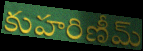
కుహరిణీమ్